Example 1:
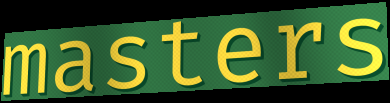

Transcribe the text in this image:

masters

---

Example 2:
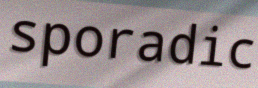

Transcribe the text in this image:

sporadic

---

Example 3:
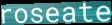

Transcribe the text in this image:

roseate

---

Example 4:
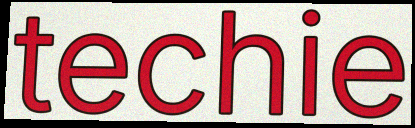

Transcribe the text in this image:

techie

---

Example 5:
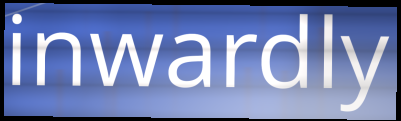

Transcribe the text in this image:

inwardly